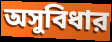
অসুবিধার